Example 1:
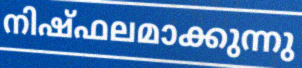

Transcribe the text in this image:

നിഷ്ഫലമാക്കുന്നു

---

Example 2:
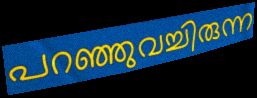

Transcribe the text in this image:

പറഞ്ഞുവച്ചിരുന്ന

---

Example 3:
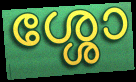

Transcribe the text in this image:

ശ്ശോ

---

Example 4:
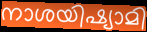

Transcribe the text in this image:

നാശയിഷ്യാമി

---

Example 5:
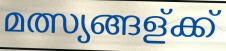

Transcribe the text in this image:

മത്സ്യങ്ങള്ക്ക്